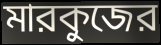
মারকুজের